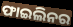
ଫାଇଲିନର